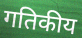
गतिकीय